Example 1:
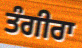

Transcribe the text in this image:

ਤੰਗੀਰਾ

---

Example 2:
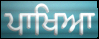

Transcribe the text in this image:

ਪਾਖਿਆ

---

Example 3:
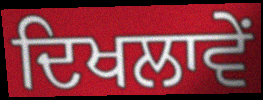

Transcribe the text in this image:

ਦਿਖਲਾਵੇਂ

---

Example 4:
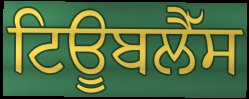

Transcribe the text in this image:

ਟਿਊਬਲੈੱਸ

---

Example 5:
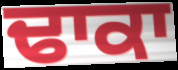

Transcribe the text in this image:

ਢਾਕਾ